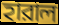
হারাল